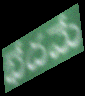
భేదమే